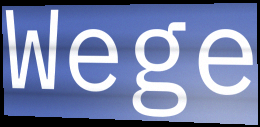
Wege